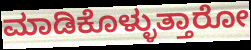
ಮಾಡಿಕೊಳ್ಳುತ್ತಾರೋ